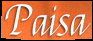
Paisa